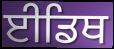
ਈਡਿਥ